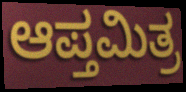
ಆಪ್ತಮಿತ್ರ